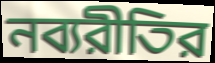
নব্যরীতির